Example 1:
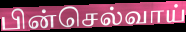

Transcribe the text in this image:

பின்செல்வாய்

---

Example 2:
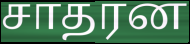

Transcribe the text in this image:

சாதரன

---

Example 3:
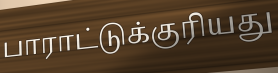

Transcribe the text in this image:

பாராட்டுக்குரியது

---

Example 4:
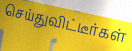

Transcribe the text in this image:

செய்துவிட்டீர்கள்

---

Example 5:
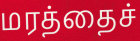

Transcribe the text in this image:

மரத்தைச்